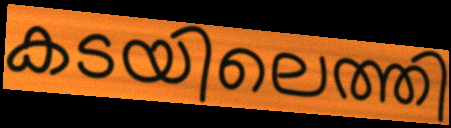
കടയിലെത്തി